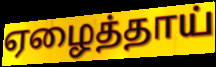
ஏழைத்தாய்